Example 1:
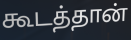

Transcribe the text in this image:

கூடத்தான்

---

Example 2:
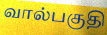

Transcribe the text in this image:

வால்பகுதி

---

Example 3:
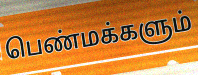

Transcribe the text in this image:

பெண்மக்களும்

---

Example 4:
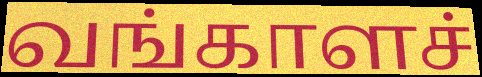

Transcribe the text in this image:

வங்காளச்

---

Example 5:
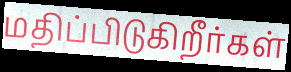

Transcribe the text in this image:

மதிப்பிடுகிறீர்கள்